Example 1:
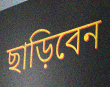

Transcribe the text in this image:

ছাড়িবেন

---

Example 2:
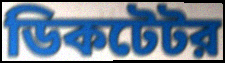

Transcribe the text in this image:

ডিকটেটর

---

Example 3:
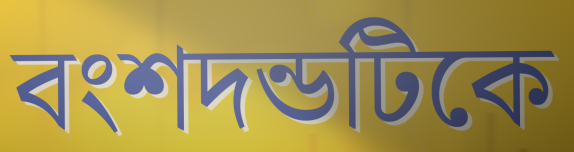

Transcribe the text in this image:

বংশদন্ডটিকে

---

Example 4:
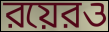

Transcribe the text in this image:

রয়েরও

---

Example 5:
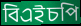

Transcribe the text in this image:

বিএইচপি